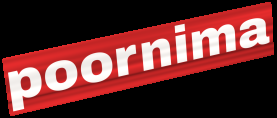
poornima